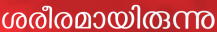
ശരീരമായിരുന്നു